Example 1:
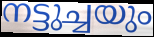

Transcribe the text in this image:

നട്ടുച്ചയും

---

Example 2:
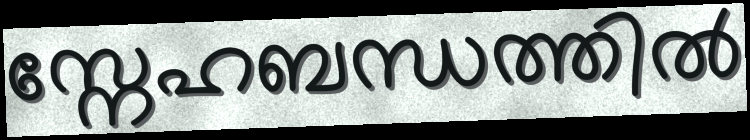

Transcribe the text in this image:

സ്നേഹബന്ധത്തിൽ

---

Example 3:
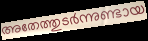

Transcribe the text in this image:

അതേത്തുടർന്നുണ്ടായ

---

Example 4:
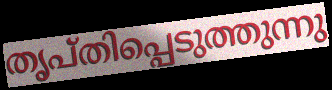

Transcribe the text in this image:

തൃപ്തിപ്പെടുത്തുന്നു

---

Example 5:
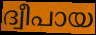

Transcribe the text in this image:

ദ്വീപായ